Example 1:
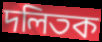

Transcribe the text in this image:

দলিতক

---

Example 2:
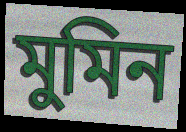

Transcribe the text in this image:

মুমিন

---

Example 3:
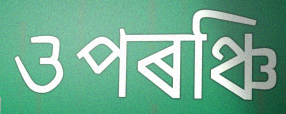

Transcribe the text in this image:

ওপৰঞ্চি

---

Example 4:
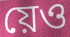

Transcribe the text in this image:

য়েও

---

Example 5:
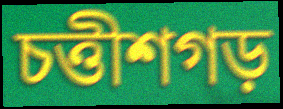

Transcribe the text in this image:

চত্তীশগড়